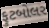
ફુટબોલર